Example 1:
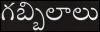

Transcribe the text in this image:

గబ్బిలాలు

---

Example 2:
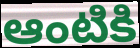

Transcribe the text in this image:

ఆంటికి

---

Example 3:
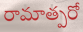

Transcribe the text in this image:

రామాత్పరో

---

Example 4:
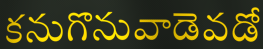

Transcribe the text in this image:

కనుగొనువాడెవడో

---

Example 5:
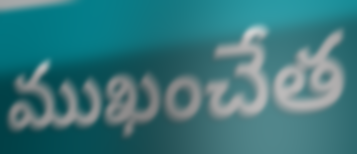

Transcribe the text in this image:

ముఖంచేత